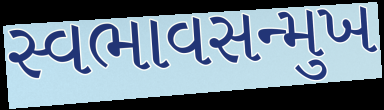
સ્વભાવસન્મુખ